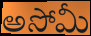
అసోమీ